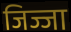
जिज्जा